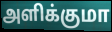
அளிக்குமா